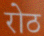
रोठ